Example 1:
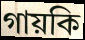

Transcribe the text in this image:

গায়কি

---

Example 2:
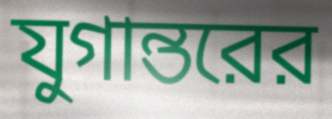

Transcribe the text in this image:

যুগান্তরের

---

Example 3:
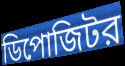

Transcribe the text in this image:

ডিপোজিটর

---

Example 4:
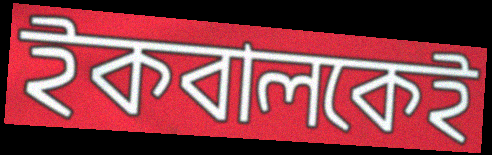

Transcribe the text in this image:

ইকবালকেই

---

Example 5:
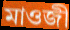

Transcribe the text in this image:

মাওজী